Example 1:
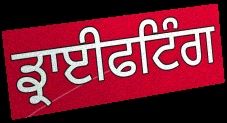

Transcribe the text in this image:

ਡ੍ਰਾਈਫਟਿੰਗ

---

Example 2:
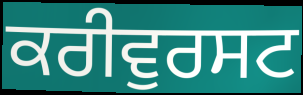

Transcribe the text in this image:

ਕਰੀਵੁਰਸਟ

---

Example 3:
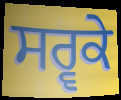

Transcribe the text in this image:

ਸਰ੍ਵਕੇ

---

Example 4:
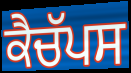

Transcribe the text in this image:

ਕੈਚੱਪਸ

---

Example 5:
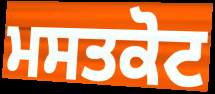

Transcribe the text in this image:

ਮਸਤਕੋਟ